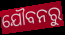
ଯୌବନରୁ